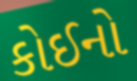
કોઈનો